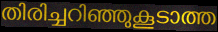
തിരിച്ചറിഞ്ഞുകൂടാത്ത